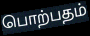
பொற்பதம்